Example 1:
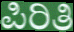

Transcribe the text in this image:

ಪಿರಿತಿ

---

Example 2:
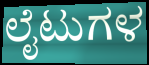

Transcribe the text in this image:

ಲೈಟುಗಳ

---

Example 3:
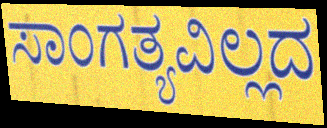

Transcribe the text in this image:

ಸಾಂಗತ್ಯವಿಲ್ಲದ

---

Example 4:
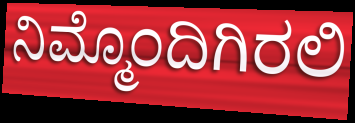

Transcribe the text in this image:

ನಿಮ್ಮೊಂದಿಗಿರಲಿ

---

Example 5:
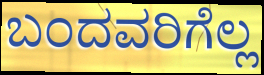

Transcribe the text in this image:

ಬಂದವರಿಗೆಲ್ಲ